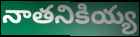
నాతనికియ్య